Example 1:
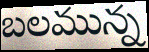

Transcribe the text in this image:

బలమున్న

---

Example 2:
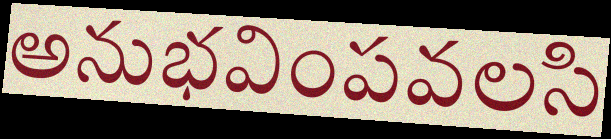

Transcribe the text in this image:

అనుభవింపవలసి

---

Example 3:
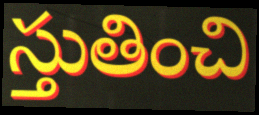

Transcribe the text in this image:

స్తుతించి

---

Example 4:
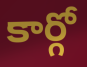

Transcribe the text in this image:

కార్గో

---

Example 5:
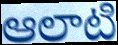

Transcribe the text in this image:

ఆలాటి